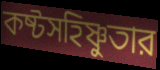
কষ্টসহিষ্ণুতার